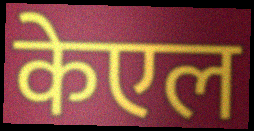
केएल